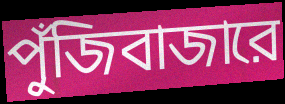
পুঁজিবাজারে